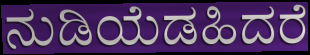
ನುಡಿಯೆಡಹಿದರೆ